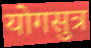
योगसुत्र